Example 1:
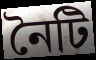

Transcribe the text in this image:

নৈটি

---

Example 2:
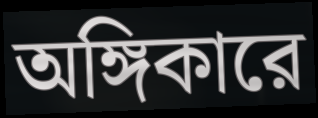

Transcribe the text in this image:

অঙ্গিকারে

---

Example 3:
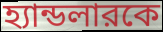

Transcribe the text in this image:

হ্যান্ডলারকে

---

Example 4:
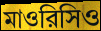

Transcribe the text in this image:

মাওরিসিও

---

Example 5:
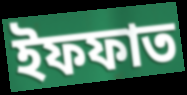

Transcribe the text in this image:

ইফফাত